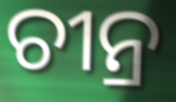
ଚୀନ୍ର